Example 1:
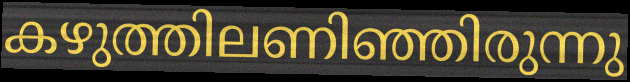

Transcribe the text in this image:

കഴുത്തിലണിഞ്ഞിരുന്നു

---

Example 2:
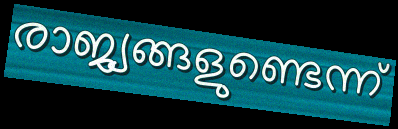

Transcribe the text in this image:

രാജ്യങ്ങളുണ്ടെന്ന്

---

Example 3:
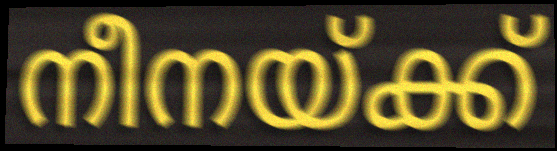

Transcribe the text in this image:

നീനയ്ക്ക്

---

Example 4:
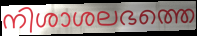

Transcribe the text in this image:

നിശാശലഭത്തെ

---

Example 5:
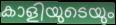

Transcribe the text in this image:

കാളിയുടെയും